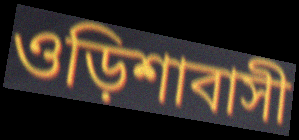
ওড়িশাবাসী